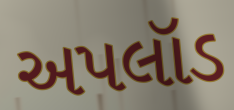
અપલૉડ